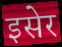
इसेर